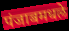
पंजाबमधले